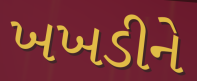
ખખડીને